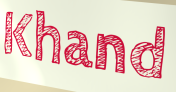
Khand